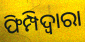
ଫିମ୍ପିଦ୍ଵାରା